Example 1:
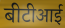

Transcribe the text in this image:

बीटीआई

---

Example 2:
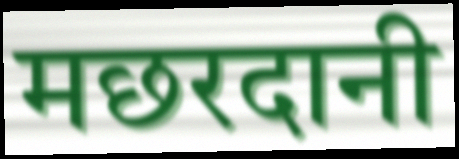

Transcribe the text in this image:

मछरदानी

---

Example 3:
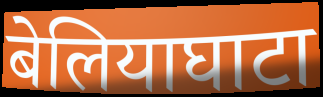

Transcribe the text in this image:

बेलियाघाटा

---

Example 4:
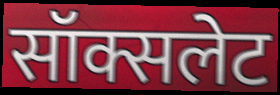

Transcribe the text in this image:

सॉक्सलेट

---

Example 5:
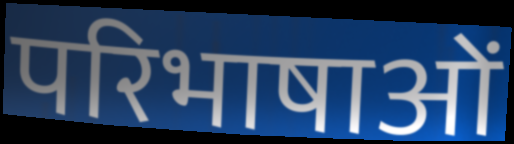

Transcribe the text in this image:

परिभाषाओं